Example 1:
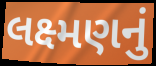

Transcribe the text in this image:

લક્ષ્મણનું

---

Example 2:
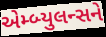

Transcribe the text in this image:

એમ્બ્યુલન્સને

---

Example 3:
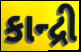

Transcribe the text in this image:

કાન્દ્રી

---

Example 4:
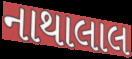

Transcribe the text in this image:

નાથાલાલ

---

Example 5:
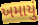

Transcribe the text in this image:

ખમાયું